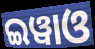
ଇୱାଓ